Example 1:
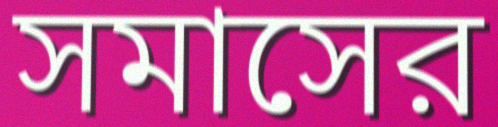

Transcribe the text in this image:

সমাসের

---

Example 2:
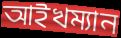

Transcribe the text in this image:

আইখম্যান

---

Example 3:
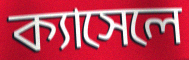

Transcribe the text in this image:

ক্যাসেলে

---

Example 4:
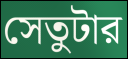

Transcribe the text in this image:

সেতুটার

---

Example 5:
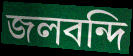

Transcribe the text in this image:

জলবন্দি